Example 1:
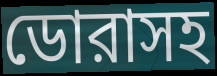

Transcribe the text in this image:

ডোরাসহ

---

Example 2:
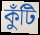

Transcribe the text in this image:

কুঁটি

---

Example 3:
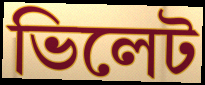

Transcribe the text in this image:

ভিলেট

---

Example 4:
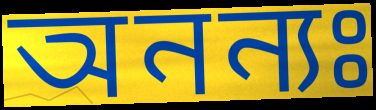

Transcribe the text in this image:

অনন্যঃ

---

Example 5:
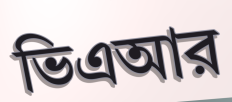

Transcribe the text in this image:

ভিএআর